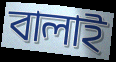
বালাই